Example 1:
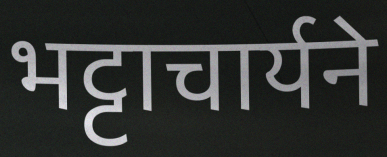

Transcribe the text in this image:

भट्टाचार्यने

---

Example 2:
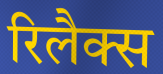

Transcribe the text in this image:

रिलैक्‍स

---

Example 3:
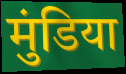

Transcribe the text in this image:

मुंडिया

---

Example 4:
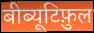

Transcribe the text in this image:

बीब्यूटिफ़ुल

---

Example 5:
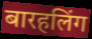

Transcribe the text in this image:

बारहलिंग